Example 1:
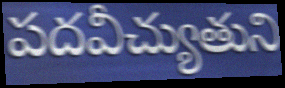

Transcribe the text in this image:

పదవీచ్యుతుని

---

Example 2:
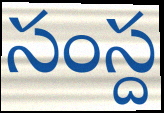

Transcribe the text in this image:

సంస్ద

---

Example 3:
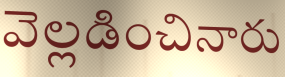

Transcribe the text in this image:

వెల్లడించినారు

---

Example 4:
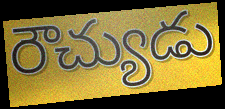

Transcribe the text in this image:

రౌచ్యుడు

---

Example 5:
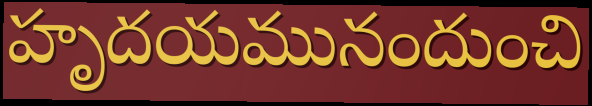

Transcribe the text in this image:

హృదయమునందుంచి